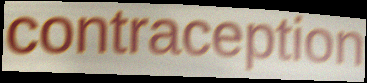
contraception